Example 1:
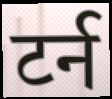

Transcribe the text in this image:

टर्न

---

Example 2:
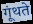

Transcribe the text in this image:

गूंथते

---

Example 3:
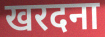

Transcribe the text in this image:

खरदना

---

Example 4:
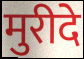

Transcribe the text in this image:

मुरीदे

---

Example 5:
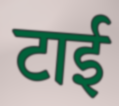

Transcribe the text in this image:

टाई